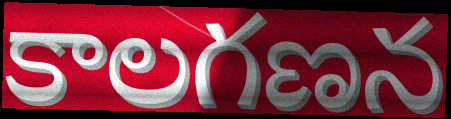
కాలగణన